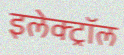
इलेक्ट्रॉल